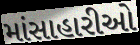
માંસાહારીઓ